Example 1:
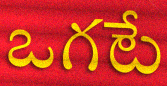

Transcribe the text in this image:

ఒగటే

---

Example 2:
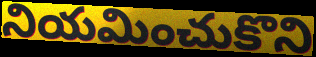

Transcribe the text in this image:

నియమించుకొని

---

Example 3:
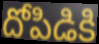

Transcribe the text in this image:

దోపిడికి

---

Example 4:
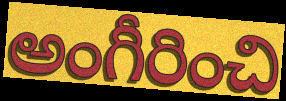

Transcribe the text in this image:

అంగీరించి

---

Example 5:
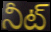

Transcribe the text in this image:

నీట్